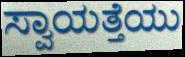
ಸ್ವಾಯತ್ತೆಯು